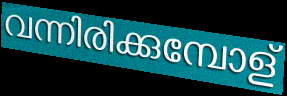
വന്നിരിക്കുമ്പോള്